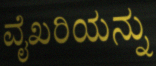
ವೈಖರಿಯನ್ನು